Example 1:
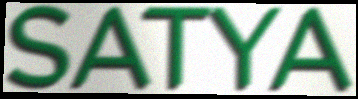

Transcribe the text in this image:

SATYA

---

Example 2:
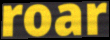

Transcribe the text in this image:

roar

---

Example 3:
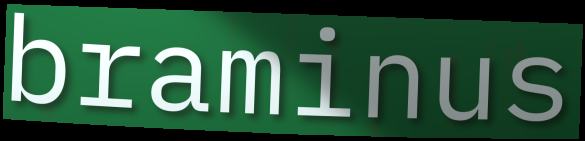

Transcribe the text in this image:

braminus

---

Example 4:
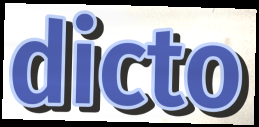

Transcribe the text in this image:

dicto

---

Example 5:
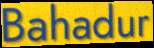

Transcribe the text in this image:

Bahadur